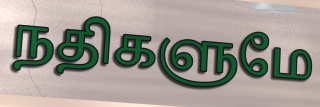
நதிகளுமே